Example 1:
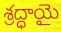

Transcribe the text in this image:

శ్రద్ధాయై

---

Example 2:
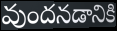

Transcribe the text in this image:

వుందనడానికి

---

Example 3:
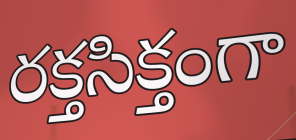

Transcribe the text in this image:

రక్తసిక్తంగా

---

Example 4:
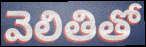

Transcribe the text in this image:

వెలితితో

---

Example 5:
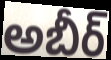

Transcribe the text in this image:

అబీర్